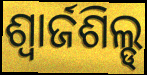
ଶ୍ୱାର୍ଜଶିଲ୍ଡ୍